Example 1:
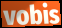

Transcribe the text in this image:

vobis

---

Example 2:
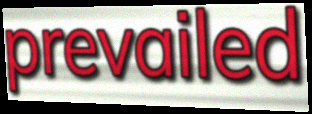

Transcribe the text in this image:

prevailed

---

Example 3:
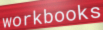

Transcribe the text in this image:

workbooks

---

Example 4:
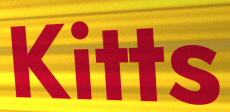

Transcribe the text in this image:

Kitts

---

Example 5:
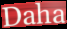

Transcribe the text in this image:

Daha